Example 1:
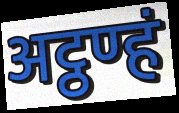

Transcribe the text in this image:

अट्ठण्हं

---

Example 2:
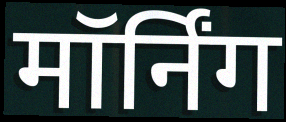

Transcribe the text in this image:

मॉर्निंग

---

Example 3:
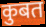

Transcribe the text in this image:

कुबत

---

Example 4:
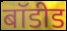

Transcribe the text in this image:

बॉडीड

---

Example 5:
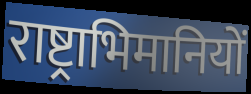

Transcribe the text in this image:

राष्ट्राभिमानियों